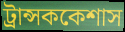
ট্রান্সককেশাস